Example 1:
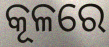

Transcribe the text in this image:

କୂଳରେ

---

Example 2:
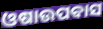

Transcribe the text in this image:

ଓଷାଉପବାସ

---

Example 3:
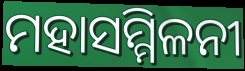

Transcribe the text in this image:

ମହାସମ୍ମିଳନୀ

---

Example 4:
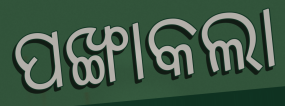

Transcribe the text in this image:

ପଙ୍ଖାକଲା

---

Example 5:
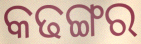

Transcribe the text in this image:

କଢଙ୍ଗର